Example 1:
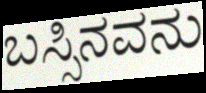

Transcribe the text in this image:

ಬಸ್ಸಿನವನು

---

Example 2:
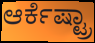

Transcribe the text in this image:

ಆರ್ಕೆಷ್ಟ್ರಾ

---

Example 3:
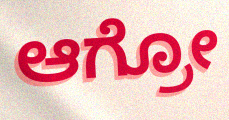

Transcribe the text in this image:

ಆಗ್ರೋ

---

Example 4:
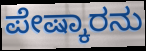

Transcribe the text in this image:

ಪೇಷ್ಕಾರನು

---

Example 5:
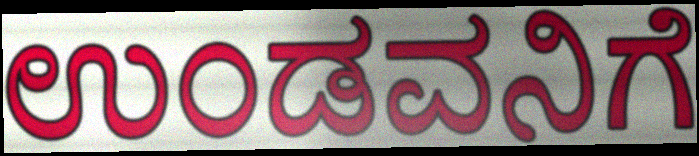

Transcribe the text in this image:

ಉಂಡವನಿಗೆ